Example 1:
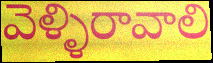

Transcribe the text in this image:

వెళ్ళిరావాలి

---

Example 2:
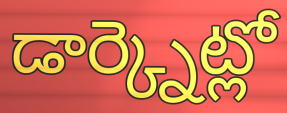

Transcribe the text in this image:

డార్క్నెట్లో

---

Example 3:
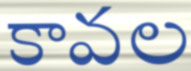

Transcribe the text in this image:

కావల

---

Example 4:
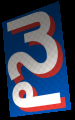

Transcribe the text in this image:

నై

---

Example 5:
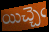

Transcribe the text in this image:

యిచ్చెఁ